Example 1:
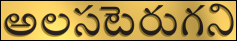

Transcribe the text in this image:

అలసటెరుగని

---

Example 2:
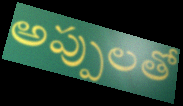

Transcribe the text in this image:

అప్పులతో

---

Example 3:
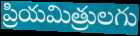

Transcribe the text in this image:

ప్రియమిత్రులగు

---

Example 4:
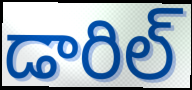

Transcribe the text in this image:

డారిల్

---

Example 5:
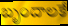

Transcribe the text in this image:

బృందాలకే